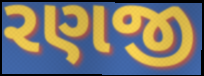
રણજી